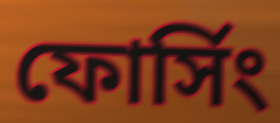
ফোর্সিং